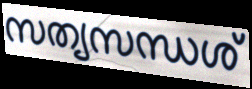
സത്യസന്ധശ്